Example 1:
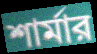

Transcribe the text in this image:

শার্মার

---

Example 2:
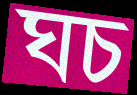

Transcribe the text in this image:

ঘচ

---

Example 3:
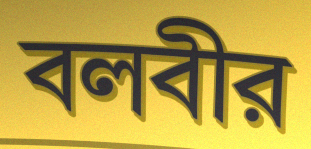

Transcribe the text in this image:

বলবীর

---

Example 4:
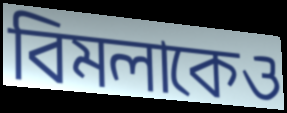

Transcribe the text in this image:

বিমলাকেও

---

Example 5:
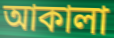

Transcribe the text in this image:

আকালা